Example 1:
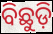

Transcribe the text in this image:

ବିଛୁଡ଼ି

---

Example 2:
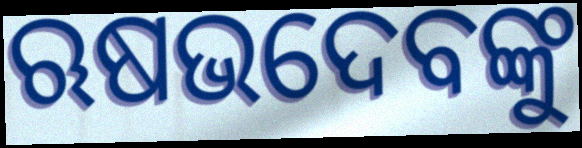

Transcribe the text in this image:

ଋଷଭଦେବଙ୍କୁ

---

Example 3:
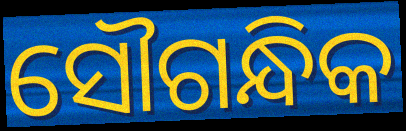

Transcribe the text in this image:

ସୌଗନ୍ଧିକ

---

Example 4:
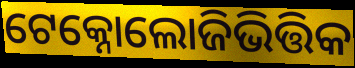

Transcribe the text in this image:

ଟେକ୍ନୋଲୋଜିଭିତ୍ତିକ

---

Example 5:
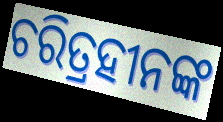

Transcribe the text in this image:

ଚରିତ୍ରହୀନଙ୍କ